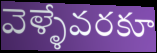
వెళ్ళేవరకూ